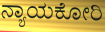
ನ್ಯಾಯಕೋರಿ